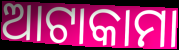
ଆଟାକାମା